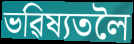
ভৱিষ্যতলৈ